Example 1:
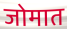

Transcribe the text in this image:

जोमात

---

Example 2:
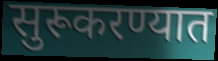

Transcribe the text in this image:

सुरूकरण्यात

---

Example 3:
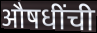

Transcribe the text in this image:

औषधींची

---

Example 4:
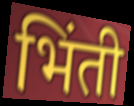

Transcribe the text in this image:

भिंती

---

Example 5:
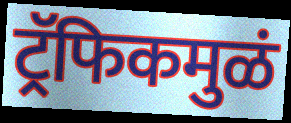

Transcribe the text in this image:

ट्रॅफिकमुळं